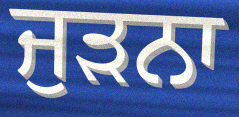
ਜੁੜਨਾ